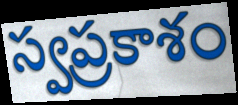
స్వప్రకాశం